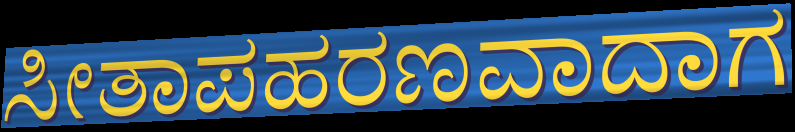
ಸೀತಾಪಹರಣವಾದಾಗ